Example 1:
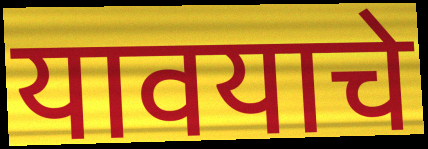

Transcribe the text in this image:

यावयाचे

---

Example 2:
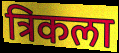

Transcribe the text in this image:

त्रिकला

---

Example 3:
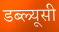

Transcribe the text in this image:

डब्ल्यूसी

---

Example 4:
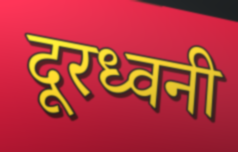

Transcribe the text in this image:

दूरध्वनी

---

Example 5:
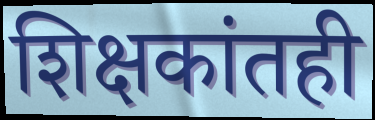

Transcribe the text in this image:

शिक्षकांतही